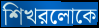
শিখরলোকে